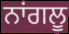
ਨਾਂਗਲੂ